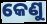
କେଣୁ